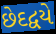
છેદદ્વયે